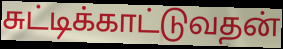
சுட்டிக்காட்டுவதன்